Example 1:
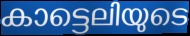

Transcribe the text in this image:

കാട്ടെലിയുടെ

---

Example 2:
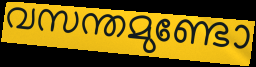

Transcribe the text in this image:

വസന്തമുണ്ടോ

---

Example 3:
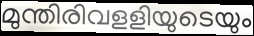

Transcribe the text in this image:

മുന്തിരിവളളിയുടെയും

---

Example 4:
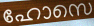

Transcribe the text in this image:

ഹോസെ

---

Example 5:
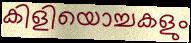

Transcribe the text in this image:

കിളിയൊച്ചകളും